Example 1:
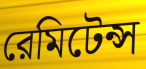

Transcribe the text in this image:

রেমিটেন্স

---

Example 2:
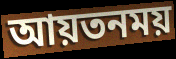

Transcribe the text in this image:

আয়তনময়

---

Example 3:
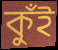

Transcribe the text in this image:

কুঁই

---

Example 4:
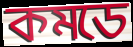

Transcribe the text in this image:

কমডে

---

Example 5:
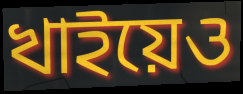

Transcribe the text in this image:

খাইয়েও